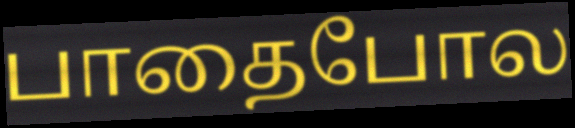
பாதைபோல